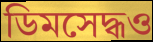
ডিমসেদ্ধও